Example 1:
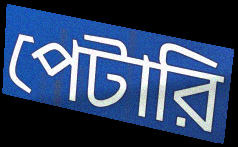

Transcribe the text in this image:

পেটারি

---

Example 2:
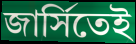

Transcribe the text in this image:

জার্সিতেই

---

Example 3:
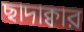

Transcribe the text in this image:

ছাদাক্বার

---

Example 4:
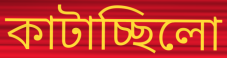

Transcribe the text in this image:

কাটাচ্ছিলো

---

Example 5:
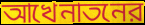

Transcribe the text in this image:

আখেনাতনের